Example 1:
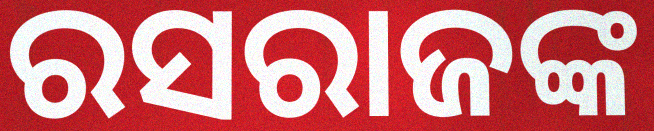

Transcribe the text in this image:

ରସରାଜଙ୍କ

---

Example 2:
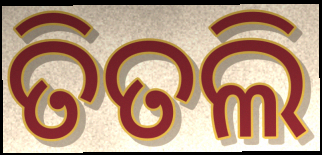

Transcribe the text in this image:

ତିତଲି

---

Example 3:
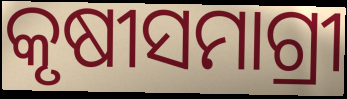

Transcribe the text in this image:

କୃଷୀସମାଗ୍ରୀ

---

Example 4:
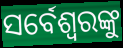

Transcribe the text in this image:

ସର୍ବେଶ୍ୱରଙ୍କୁ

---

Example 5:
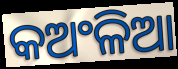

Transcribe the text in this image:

କଅଂଳିଆ